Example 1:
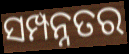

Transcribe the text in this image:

ସମ୍ପନ୍ନତର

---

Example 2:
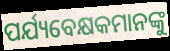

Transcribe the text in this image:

ପର୍ଯ୍ୟବେକ୍ଷକମାନଙ୍କୁ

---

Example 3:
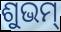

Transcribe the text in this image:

ଶୁଭମ୍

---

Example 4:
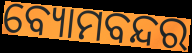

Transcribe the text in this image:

ବ୍ୟୋମବନ୍ଦର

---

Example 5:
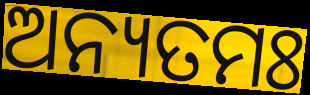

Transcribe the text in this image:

ଅନ୍ୟତମଃ